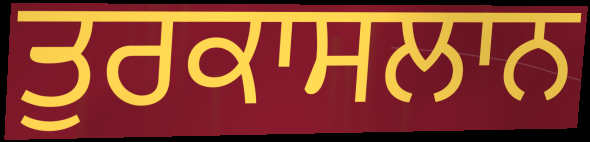
ਤੁਰਕਾਸਲਾਨ